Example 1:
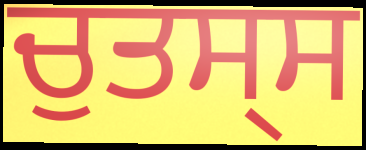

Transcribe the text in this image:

ਚੁਤਸ੍ਸ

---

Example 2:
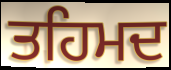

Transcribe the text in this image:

ਤਹਿਮਦ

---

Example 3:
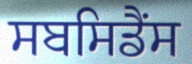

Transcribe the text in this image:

ਸਬਸਿਡੈਂਸ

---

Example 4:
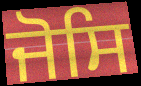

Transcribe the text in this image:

ਜੋਸਿ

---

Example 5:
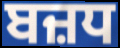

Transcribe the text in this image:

ਬਜ਼ਧ